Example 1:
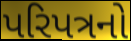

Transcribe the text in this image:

પરિપત્રનો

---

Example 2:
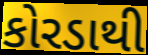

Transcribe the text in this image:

કોરડાથી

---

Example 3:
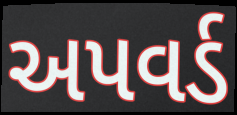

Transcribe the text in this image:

અપવર્ડ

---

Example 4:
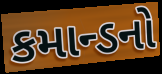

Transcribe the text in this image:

કમાન્ડનો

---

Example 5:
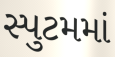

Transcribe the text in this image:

સ્પુટમમાં